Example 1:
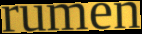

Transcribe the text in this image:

rumen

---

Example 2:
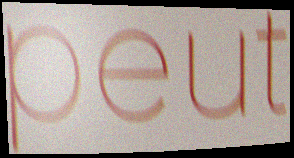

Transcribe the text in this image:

peut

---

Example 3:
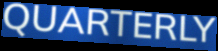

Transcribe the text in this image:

QUARTERLY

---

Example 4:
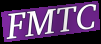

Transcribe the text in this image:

FMTC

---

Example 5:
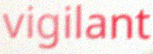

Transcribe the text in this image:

vigilant